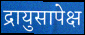
द्रायुसापेक्ष